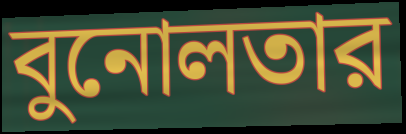
বুনোলতার